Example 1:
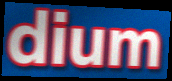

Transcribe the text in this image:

dium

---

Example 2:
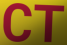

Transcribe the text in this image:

CT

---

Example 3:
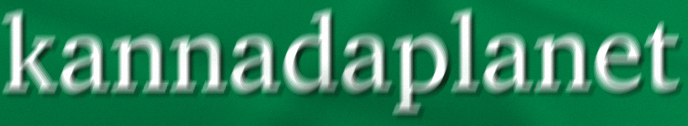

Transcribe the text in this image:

kannadaplanet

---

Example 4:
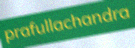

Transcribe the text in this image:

prafullachandra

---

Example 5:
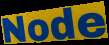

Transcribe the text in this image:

Node